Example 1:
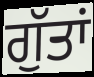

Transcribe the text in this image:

ਗੁੱਤਾਂ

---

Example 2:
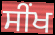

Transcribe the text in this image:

ਸੀਂਖ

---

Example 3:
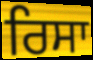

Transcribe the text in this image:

ਰਿਸਾ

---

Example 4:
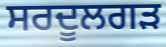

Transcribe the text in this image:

ਸਰਦੂਲਗੜ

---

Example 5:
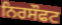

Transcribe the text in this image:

ਨਿਰਸੌਫਟ